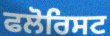
ਫਲੋਰਿਸਟ